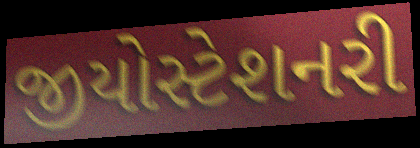
જીયોસ્ટેશનરી